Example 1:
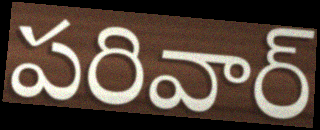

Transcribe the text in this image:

పరివార్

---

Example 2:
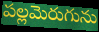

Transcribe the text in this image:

పల్లమెరుగును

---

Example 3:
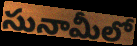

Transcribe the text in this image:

సునామీలో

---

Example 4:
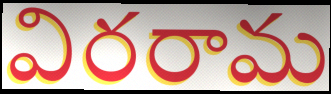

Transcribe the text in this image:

విరరామ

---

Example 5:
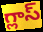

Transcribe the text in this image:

గ్లాస్